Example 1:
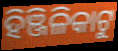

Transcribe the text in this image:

ହିଞ୍ଜିଳିକାଟୁ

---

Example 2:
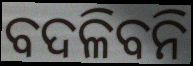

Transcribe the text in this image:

ବଦଳିବନି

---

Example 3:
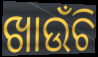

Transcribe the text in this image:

ଖାଉଁଚି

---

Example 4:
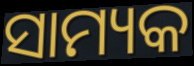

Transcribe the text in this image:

ସାମ୍ୟକ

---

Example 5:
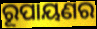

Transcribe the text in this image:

ରୂପାୟଣର